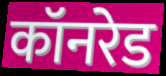
कॉनरेड